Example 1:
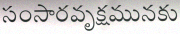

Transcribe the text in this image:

సంసారవృక్షమునకు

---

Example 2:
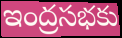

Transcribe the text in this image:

ఇంద్రసభకు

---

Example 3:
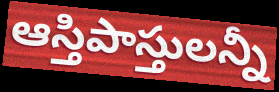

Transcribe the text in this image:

ఆస్తిపాస్తులన్నీ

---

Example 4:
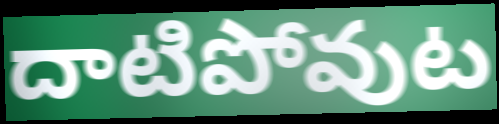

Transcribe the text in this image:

దాటిపోవుట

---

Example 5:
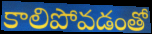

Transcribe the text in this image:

కాలిపోవడంతో